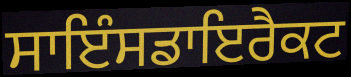
ਸਾਇੰਸਡਾਇਰੈਕਟ